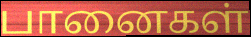
பானைகள்